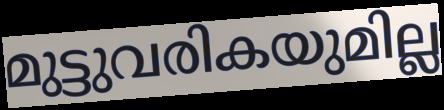
മുട്ടുവരികയുമില്ല